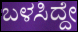
ಬಳಸಿದ್ದೇ